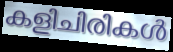
കളിചിരികൾ